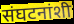
संघटनांशी